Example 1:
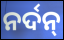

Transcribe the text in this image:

ନର୍ଦନ୍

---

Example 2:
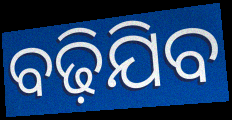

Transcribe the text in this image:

ବଢ଼ିଯିବ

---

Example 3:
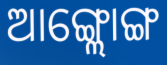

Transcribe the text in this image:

ଆଙ୍ଗ୍ଲୋଙ୍ଗ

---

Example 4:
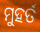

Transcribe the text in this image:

ମୁହର୍ତ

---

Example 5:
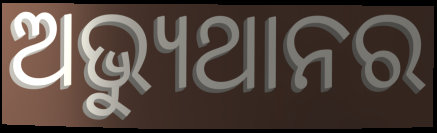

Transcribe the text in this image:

ଅଭ୍ୟୁଥାନର